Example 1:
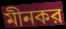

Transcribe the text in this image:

মীনকর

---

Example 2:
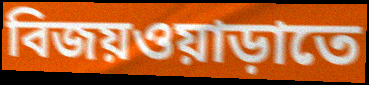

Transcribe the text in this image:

বিজয়ওয়াড়াতে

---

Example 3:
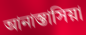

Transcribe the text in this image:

আনাস্তাসিয়া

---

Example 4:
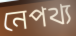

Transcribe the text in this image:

নেপথ্য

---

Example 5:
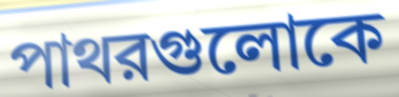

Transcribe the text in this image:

পাথরগুলোকে